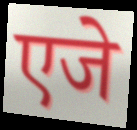
एजे